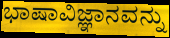
ಭಾಷಾವಿಜ್ಞಾನವನ್ನು